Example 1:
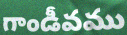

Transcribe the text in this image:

గాండీవము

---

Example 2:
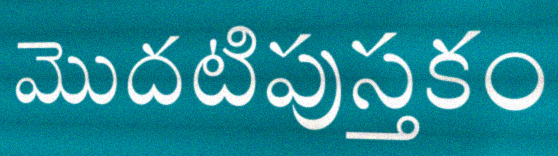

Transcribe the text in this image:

మొదటిపుస్తకం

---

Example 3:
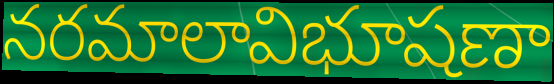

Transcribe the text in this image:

నరమాలావిభూషణా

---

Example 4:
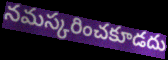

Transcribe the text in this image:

నమస్కరించకూడదు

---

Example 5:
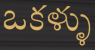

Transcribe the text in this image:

ఒకళ్ళు